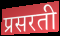
प्रसरती